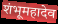
शंभूमहादेव